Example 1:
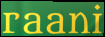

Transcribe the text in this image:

raani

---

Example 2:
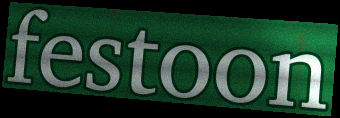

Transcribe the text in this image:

festoon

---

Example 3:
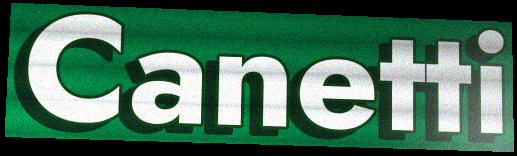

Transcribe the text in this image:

Canetti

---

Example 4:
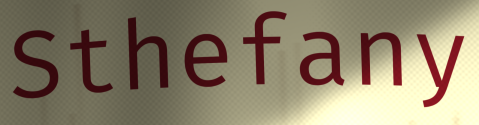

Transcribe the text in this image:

Sthefany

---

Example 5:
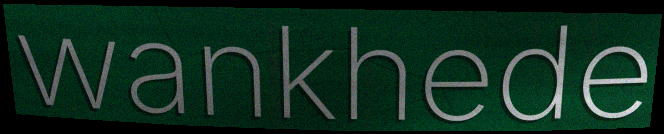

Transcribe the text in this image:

wankhede